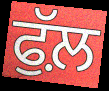
ਫੁੱਲ਼